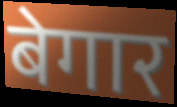
बेगार